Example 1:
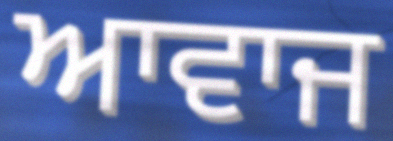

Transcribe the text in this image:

ਆਵਾਜ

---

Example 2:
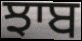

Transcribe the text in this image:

ਝਾਬ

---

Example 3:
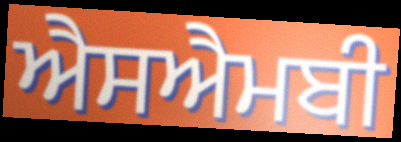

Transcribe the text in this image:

ਐਸਐਮਬੀ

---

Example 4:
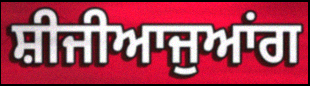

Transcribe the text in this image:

ਸ਼ੀਜੀਆਜੁਆਂਗ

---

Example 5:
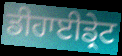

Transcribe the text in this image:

ਡੀਹਾਈਡ੍ਰੇਟ